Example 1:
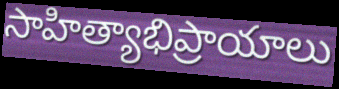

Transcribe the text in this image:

సాహిత్యాభిప్రాయాలు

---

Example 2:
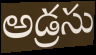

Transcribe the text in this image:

అడ్రసు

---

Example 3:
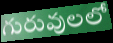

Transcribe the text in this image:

గురువులలో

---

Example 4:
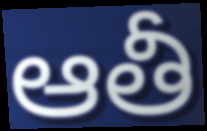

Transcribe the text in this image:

ఆతీ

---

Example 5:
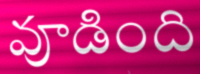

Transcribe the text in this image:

వూడింది